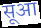
सूआ